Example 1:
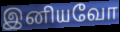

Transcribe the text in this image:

இனியவோ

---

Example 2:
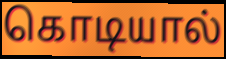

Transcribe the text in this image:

கொடியால்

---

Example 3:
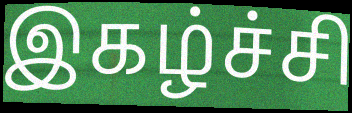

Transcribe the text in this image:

இகழ்ச்சி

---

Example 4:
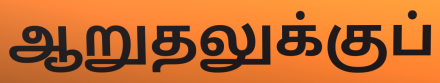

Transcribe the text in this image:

ஆறுதலுக்குப்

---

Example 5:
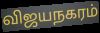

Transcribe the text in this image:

விஜயநகரம்